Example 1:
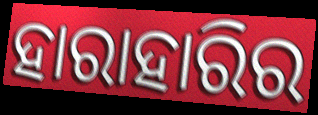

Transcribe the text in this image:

ହାରାହାରିର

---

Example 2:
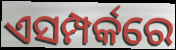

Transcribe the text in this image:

ଏସମ୍ପର୍କରେ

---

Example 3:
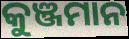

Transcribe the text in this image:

କୁଞ୍ଜମାନ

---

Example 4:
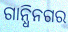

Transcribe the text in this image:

ଗାନ୍ଧିନଗର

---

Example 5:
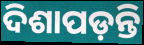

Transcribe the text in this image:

ଦିଶାପଡ଼ନ୍ତି